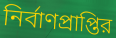
নির্বাণপ্রাপ্তির